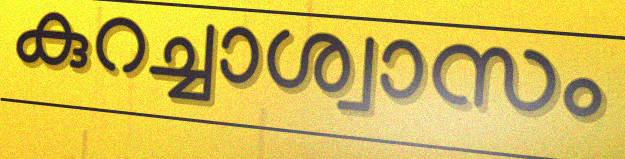
കുറച്ചാശ്വാസം